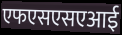
एफएसएसएआई